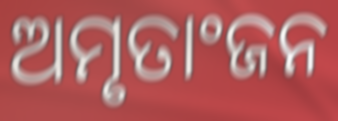
ଅମୃତାଂଜନ